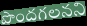
పొందగలనని